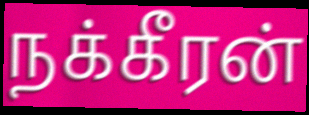
நக்கீரன்